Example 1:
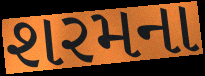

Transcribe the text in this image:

શરમના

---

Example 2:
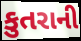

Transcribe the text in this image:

કુતરાની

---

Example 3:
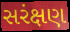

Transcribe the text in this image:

સરંક્ષણ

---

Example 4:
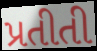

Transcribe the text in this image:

પ્રતીતી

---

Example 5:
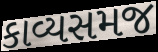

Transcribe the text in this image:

કાવ્યસમજ